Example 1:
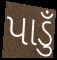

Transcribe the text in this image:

પાડુઁ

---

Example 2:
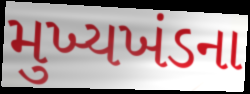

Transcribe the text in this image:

મુખ્યખંડના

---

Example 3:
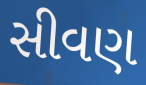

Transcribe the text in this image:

સીવણ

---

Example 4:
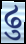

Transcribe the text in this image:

ઢુ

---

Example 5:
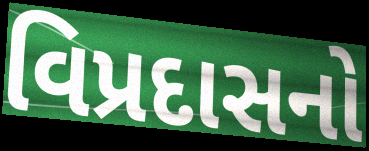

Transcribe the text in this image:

વિપ્રદાસનો